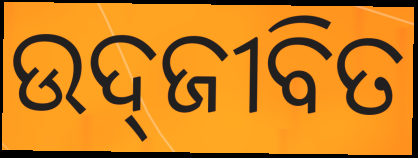
ଉଦ୍‍ଜୀବିତ